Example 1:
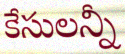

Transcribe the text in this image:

కేసులన్నీ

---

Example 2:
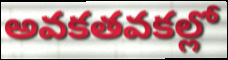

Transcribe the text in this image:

అవకతవకల్లో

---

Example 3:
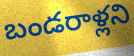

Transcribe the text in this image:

బండరాళ్లని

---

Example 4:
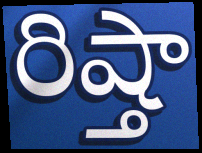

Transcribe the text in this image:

రిష్తా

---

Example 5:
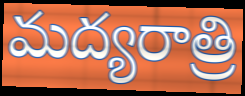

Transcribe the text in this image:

మద్యరాత్రి